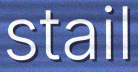
stail